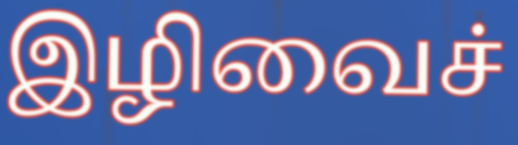
இழிவைச்